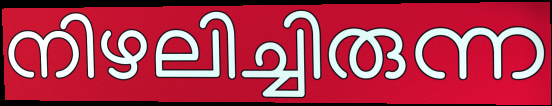
നിഴലിച്ചിരുന്ന